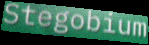
Stegobium